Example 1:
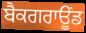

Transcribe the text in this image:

ਬੈਕਗਰਾਊਂਡ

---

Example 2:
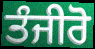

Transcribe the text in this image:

ਤੰਜੀਰੋ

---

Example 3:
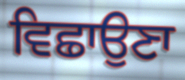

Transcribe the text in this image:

ਵਿਛਾਉਣਾ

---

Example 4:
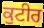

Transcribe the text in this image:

ਕੁਟੀਰ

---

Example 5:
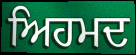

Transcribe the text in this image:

ਅਿਹਮਦ